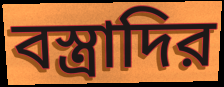
বস্ত্রাদির